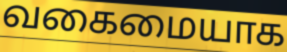
வகைமையாக